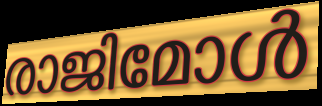
രാജിമോൾ